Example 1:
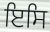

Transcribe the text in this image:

ਇਸਿ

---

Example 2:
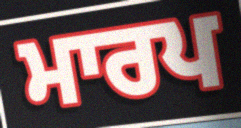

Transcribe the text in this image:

ਮਾਰਪ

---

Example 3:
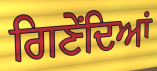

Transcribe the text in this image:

ਗਿਣੇਂਦਿਆਂ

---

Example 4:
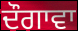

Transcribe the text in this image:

ਦੌਗਾਵਾ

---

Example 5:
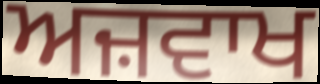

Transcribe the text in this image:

ਅਜ਼ਵਾਖ